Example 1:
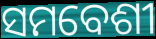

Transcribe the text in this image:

ସମବେଶୀ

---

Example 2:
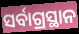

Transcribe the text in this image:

ସର୍ବାଗ୍ରସ୍ଥାନ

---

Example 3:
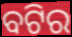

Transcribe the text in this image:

ବଟିର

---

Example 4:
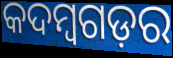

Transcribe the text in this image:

କଦମ୍ବଗଡ଼ର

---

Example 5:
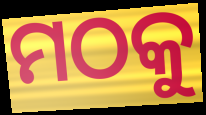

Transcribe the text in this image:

ମଠକୁ